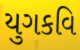
યુગકવિ